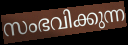
സംഭവിക്കുന്ന